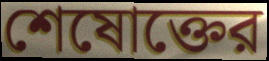
শেষোক্তের